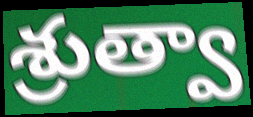
శ్రుత్వా